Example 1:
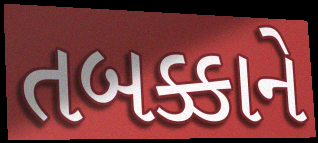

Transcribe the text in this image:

તબક્કાને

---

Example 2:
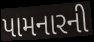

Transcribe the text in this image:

પામનારની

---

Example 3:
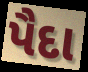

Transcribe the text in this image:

પૈદા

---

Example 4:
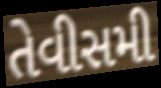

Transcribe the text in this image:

તેવીસમી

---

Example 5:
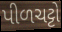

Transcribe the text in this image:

પીળચટ્ટો